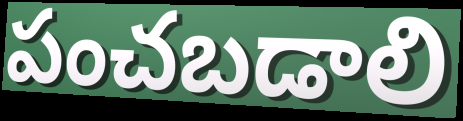
పంచబడాలి